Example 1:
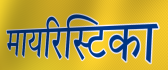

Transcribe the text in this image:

मायरिस्टिका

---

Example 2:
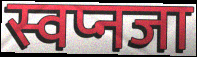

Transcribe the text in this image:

स्वप्नजा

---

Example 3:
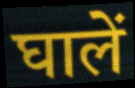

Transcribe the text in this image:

घालें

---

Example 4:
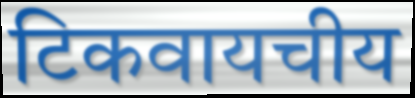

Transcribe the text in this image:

टिकवायचीय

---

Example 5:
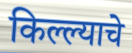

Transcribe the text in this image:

किल्ल्याचे